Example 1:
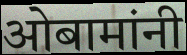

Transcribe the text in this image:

ओबामांनी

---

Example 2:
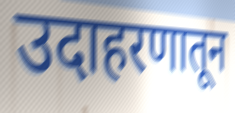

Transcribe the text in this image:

उदाहरणातून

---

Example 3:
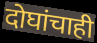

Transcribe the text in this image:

दोघांचाही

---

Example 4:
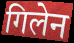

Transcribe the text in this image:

गिलेन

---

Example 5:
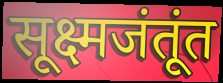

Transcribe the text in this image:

सूक्ष्मजंतूंत